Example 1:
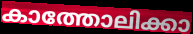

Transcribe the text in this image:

കാത്തോലിക്കാ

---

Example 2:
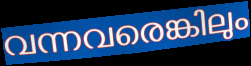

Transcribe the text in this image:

വന്നവരെങ്കിലും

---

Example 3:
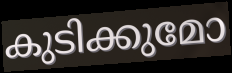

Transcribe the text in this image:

കുടിക്കുമോ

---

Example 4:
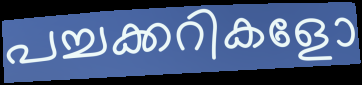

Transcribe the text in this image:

പച്ചക്കറികളോ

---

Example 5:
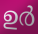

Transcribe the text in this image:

ഉർ